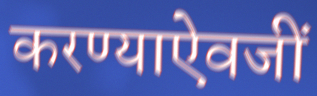
करण्याऐवजीं